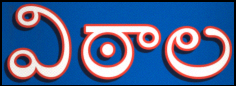
విఠాల